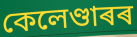
কেলেণ্ডাৰৰ